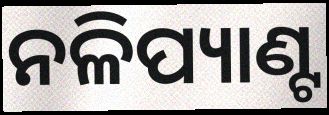
ନଳିପ୍ୟାଣ୍ଟ